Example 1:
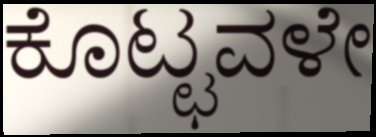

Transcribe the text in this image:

ಕೊಟ್ಟವಳೇ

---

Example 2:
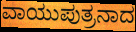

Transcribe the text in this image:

ವಾಯುಪುತ್ರನಾದ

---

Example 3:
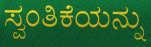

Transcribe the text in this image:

ಸ್ವಂತಿಕೆಯನ್ನು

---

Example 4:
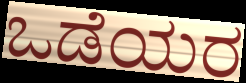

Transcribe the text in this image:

ಒಡೆಯರ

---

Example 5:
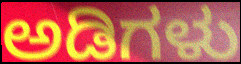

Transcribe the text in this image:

ಅಡಿಗಳು